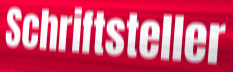
Schriftsteller